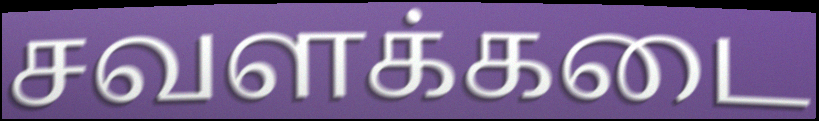
சவளக்கடை